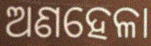
ଅଣହେଳା